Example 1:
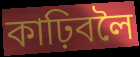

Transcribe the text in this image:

কাঢ়িবলৈ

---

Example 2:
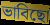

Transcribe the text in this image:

ভাবিছো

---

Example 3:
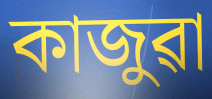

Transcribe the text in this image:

কাজুৱা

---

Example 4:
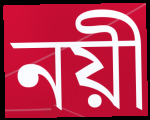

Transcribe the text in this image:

নয়ী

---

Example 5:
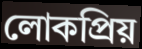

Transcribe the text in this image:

লোকপ্ৰিয়